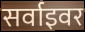
सर्वाइवर